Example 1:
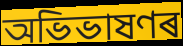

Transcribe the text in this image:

অভিভাষণৰ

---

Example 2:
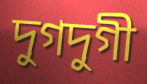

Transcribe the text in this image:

দুগদুগী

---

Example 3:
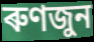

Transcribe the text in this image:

ৰুণজুন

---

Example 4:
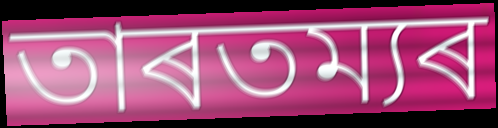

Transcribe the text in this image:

তাৰতম্যৰ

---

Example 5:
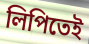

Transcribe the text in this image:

লিপিতেই